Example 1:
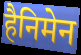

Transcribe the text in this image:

हैनिमेन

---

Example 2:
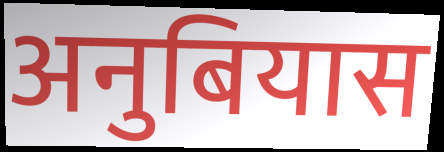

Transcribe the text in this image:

अनुबियास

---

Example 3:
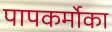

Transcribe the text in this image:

पापकर्मोका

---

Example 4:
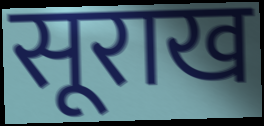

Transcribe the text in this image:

सूराख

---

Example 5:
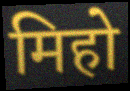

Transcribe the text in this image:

मिहो